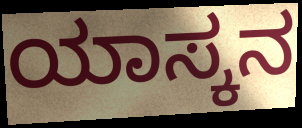
ಯಾಸ್ಕನ